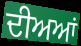
ਦੀਅਆਂ